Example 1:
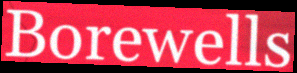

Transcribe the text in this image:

Borewells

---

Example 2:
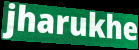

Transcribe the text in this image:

jharukhe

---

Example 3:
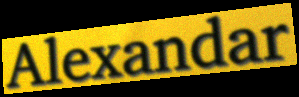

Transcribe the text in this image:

Alexandar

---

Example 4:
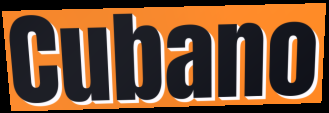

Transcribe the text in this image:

Cubano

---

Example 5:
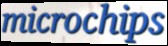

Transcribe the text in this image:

microchips